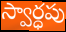
స్వార్ధపు